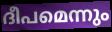
ദീപമെന്നും